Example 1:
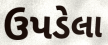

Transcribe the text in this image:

ઉપડેલા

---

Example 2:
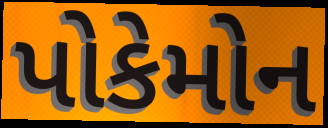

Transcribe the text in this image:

પોકેમોન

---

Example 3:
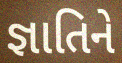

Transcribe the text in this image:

જ્ઞાતિને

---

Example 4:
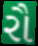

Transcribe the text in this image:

રૌ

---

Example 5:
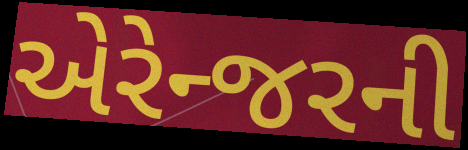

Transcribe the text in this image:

એરેન્જરની